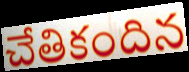
చేతికందిన